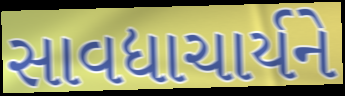
સાવદ્યાચાર્યને